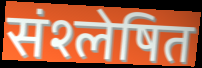
संश्लेषित